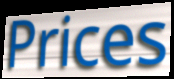
Prices